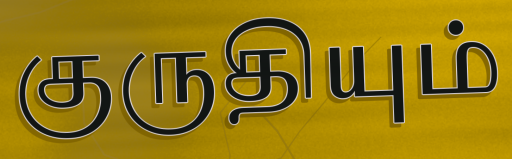
குருதியும்